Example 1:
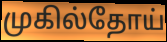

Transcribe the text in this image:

முகில்தோய்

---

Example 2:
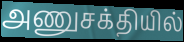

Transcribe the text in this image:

அணுசக்தியில்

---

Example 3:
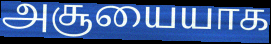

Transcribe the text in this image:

அசூயையாக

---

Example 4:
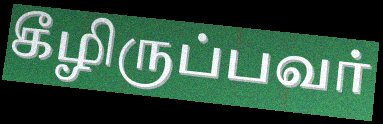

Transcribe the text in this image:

கீழிருப்பவர்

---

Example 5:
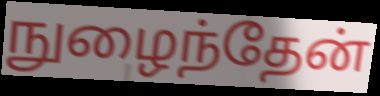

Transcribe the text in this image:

நுழைந்தேன்